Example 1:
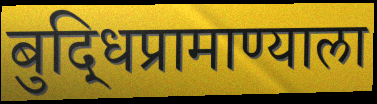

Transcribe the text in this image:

बुद्धिप्रामाण्याला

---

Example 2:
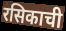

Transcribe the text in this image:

रसिकाची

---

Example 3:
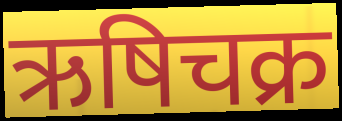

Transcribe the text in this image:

ऋषिचक्र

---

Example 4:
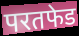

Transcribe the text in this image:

परतफेड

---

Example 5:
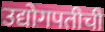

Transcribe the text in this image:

उद्योगपतीची